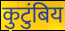
कुटुंबिय